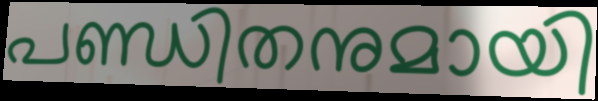
പണ്ഡിതനുമായി